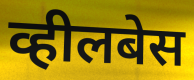
व्हीलबेस